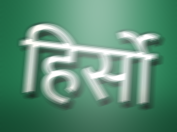
हिर्सो